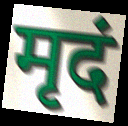
मृदं